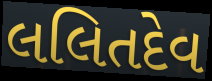
લલિતદેવ